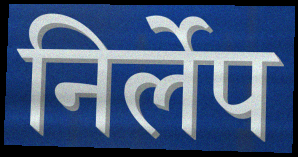
निर्लेप